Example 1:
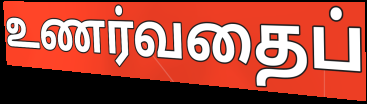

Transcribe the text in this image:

உணர்வதைப்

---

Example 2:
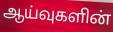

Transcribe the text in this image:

ஆய்வுகளின்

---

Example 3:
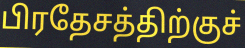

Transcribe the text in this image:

பிரதேசத்திற்குச்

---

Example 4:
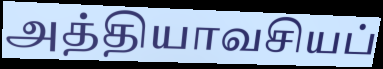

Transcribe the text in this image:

அத்தியாவசியப்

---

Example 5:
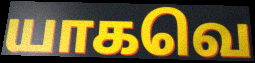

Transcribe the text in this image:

யாகவெ